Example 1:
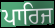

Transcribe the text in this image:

ਪਾਰਿਜ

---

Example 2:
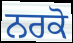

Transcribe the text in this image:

ਨਰਕੋ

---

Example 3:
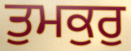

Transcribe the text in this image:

ਤੁਮਕੁਰੁ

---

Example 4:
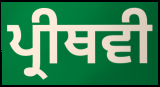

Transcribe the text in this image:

ਪ੍ਰੀਥਵੀ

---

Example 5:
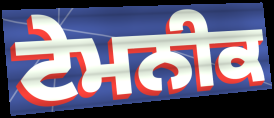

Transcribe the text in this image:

ਟੇਮਨੀਕ